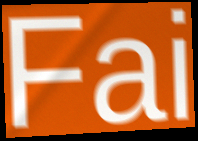
Fai